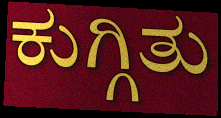
ಕುಗ್ಗಿತು